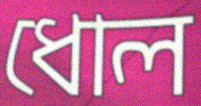
ধোল